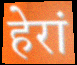
हेरां